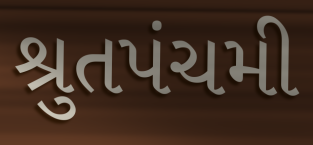
શ્રુતપંચમી